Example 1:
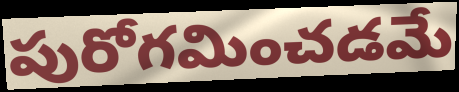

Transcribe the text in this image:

పురోగమించడమే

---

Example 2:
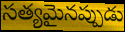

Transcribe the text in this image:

సత్యమైనప్పుడు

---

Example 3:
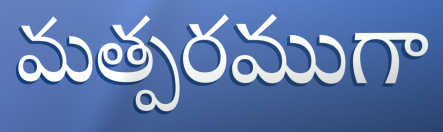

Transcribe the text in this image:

మత్పరముగా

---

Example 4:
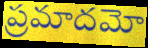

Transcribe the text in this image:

ప్రమాదమో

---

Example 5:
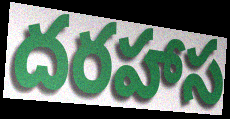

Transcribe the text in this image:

దరహాస